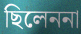
ছিলেননা